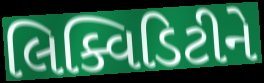
લિક્વિડિટીને